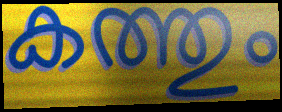
കത്തും